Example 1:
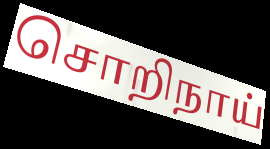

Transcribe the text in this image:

சொறிநாய்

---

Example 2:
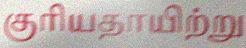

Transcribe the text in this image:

குரியதாயிற்று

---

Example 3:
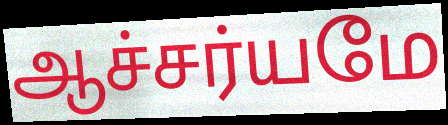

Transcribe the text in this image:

ஆச்சர்யமே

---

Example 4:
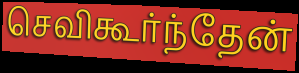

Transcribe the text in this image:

செவிகூர்ந்தேன்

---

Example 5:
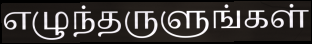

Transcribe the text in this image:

எழுந்தருளுங்கள்